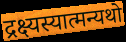
द्रक्ष्यस्यात्मन्यथो